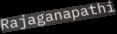
Rajaganapathi